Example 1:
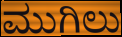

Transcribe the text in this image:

ಮುಗಿಲು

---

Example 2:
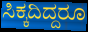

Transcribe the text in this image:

ಸಿಕ್ಕದಿದ್ದರೂ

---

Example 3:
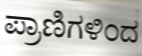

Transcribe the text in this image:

ಪ್ರಾಣಿಗಳಿಂದ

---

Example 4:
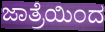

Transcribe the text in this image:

ಜಾತ್ರೆಯಿಂದ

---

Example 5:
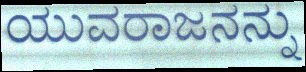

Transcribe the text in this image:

ಯುವರಾಜನನ್ನು